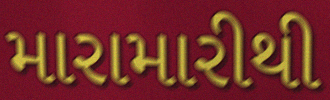
મારામારીથી